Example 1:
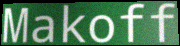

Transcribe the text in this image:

Makoff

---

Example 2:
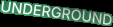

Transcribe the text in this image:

UNDERGROUND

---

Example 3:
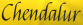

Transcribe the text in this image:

Chendalur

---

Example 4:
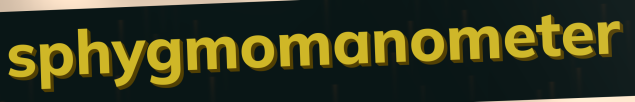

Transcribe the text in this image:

sphygmomanometer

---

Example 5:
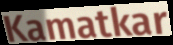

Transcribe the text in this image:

Kamatkar